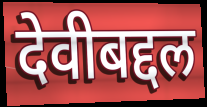
देवीबद्दल